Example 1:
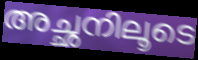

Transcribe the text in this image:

അച്ഛനിലൂടെ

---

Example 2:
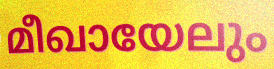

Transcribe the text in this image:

മീഖായേലും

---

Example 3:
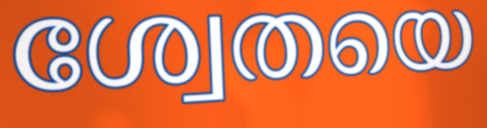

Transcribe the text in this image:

ശ്വേതയെ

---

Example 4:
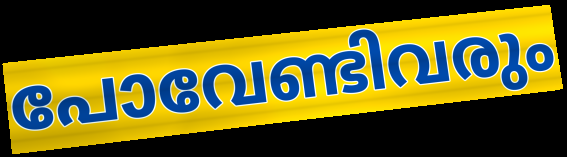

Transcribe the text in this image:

പോവേണ്ടിവരും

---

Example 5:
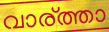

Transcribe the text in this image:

വാര്ത്താ